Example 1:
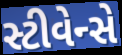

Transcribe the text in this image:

સ્ટીવેન્સે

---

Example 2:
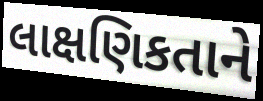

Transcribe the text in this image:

લાક્ષણિકતાને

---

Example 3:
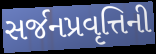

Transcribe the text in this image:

સર્જનપ્રવૃત્તિની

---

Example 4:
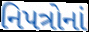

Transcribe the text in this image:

નિપત્રોનાં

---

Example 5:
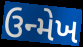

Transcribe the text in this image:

ઉન્મેખ